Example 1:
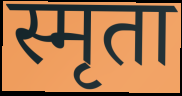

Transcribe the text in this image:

स्मृता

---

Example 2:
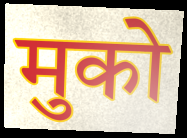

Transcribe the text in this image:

मुको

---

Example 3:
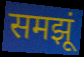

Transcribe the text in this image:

समझूं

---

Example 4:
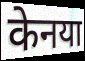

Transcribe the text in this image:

केनया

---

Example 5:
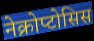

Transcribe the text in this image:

नेक्रोप्टोसिस